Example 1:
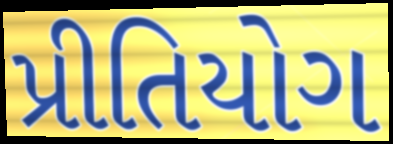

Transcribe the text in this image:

પ્રીતિયોગ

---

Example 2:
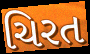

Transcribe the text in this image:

ચિરત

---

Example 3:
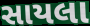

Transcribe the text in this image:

સાયલા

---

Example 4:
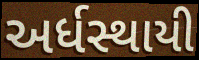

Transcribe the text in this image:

અર્ધસ્થાયી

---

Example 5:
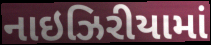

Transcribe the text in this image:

નાઇઝિરીયામાં